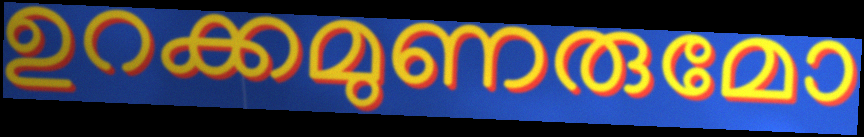
ഉറക്കമുണരുമോ